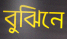
বুঝিনে